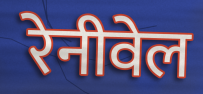
रेनीवेल